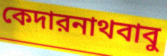
কেদারনাথবাবু